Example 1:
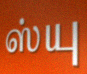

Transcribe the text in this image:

ஸ்யு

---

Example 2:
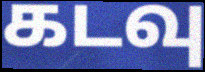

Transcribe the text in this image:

கடவு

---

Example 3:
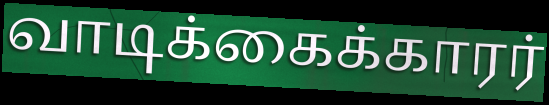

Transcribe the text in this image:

வாடிக்கைக்காரர்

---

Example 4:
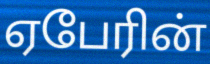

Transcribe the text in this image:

ஏபேரின்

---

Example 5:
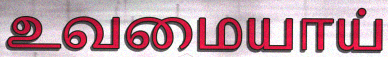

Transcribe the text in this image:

உவமையாய்